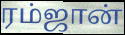
ரம்ஜான்